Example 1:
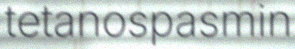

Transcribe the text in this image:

tetanospasmin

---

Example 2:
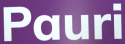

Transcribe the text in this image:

Pauri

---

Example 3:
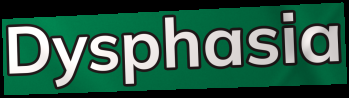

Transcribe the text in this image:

Dysphasia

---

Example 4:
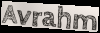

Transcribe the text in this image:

Avrahm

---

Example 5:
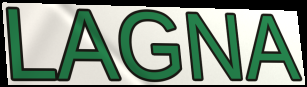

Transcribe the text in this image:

LAGNA